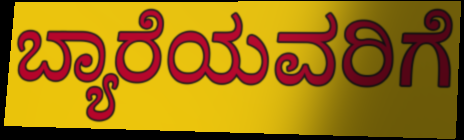
ಬ್ಯಾರೆಯವರಿಗೆ